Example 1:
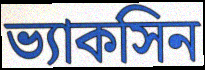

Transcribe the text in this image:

ভ্যাকসিন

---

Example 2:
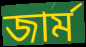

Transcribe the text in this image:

জার্ম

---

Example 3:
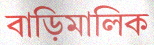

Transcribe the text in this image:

বাড়িমালিক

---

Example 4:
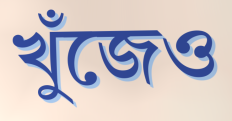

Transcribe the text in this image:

খুঁজেও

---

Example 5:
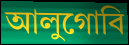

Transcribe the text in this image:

আলুগোবি